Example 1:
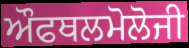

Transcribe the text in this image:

ਔਫਥਲਮੋਲੋਜੀ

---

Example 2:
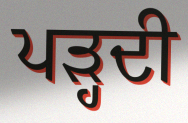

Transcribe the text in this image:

ਪੜ੍ਹਦੀ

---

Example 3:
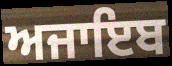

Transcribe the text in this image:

ਅਜਾਇਬ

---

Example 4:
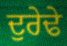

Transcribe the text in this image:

ਦੁਰੇਢੇ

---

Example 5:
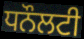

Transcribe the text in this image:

ਧਨੌਲਟੀ